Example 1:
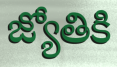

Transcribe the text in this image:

జ్యోతికి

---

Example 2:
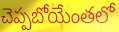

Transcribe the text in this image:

చెప్పబోయేంతలో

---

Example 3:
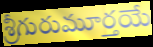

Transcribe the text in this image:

శ్రీగురుమూర్తయే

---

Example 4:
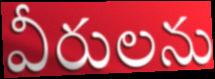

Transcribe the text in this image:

వీరులను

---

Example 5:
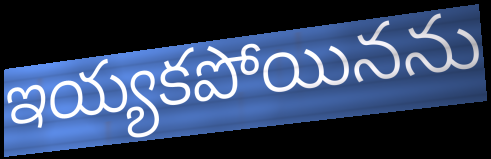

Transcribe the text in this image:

ఇయ్యకపోయినను